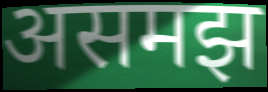
असमझ